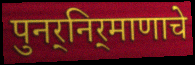
पुनर्निर्माणाचे